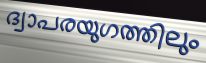
ദ്വാപരയുഗത്തിലും